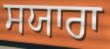
ਸਯਾਰਾ